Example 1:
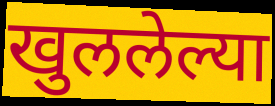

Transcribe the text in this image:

खुललेल्या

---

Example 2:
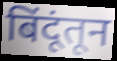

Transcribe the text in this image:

बिंदूंतून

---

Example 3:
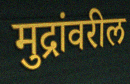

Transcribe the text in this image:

मुद्रांवरील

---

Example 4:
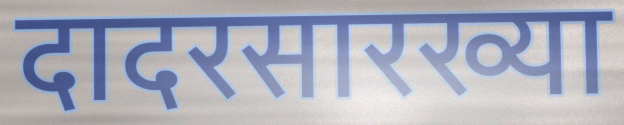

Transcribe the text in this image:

दादरसारख्या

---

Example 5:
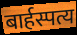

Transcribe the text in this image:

बार्हस्पत्य